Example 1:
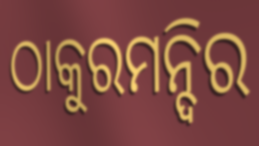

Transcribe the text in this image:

ଠାକୁରମନ୍ଦିର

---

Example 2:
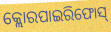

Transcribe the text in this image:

କ୍ଲୋରପାଇରିଫୋସ୍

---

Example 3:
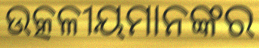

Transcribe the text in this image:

ଉତ୍କଳୀୟମାନଙ୍କର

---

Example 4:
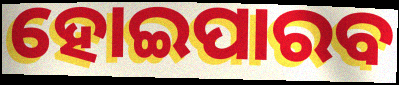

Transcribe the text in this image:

ହୋଇପାରବ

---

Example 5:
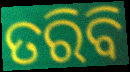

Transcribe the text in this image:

ତରିବି